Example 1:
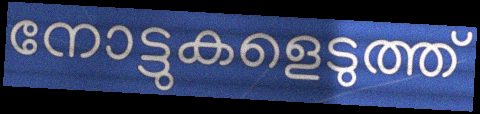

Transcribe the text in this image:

നോട്ടുകളെടുത്ത്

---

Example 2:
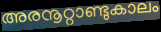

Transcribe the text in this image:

അരനൂറ്റാണ്ടുകാലം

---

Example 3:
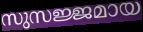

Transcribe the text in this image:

സുസജ്ജമായ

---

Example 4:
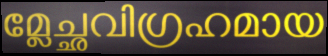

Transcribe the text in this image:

മ്ലേച്ഛവിഗ്രഹമായ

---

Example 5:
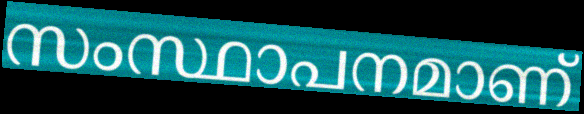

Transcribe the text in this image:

സംസ്ഥാപനമാണ്